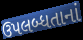
ઉપલબ્ધતાનાં